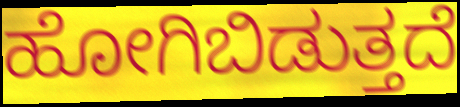
ಹೋಗಿಬಿಡುತ್ತದೆ